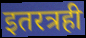
इतरत्रही